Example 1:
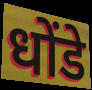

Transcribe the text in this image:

धोंडे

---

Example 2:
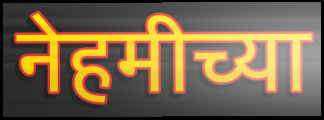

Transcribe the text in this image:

नेहमीच्या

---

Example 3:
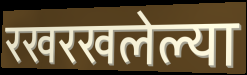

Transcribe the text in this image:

रखरखलेल्या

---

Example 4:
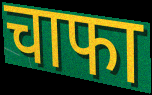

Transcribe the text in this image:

चाफा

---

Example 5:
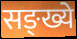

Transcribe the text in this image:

सङ्ख्ये